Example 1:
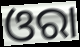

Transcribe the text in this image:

ଓରା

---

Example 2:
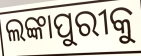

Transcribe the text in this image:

ଲଙ୍କାପୁରୀକୁ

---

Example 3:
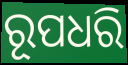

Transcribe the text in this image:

ରୂପଧରି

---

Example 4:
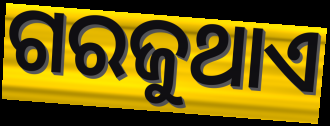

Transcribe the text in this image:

ଗରଜୁଥାଏ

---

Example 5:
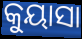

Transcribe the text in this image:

କୁୟାସା